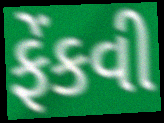
ફેંકવી